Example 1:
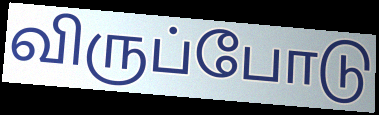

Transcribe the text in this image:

விருப்போடு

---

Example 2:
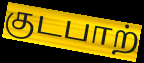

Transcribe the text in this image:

குடபாற்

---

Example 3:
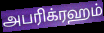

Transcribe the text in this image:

அபரிக்ரஹம்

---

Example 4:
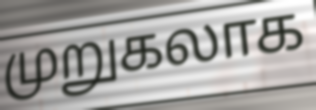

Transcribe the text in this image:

முறுகலாக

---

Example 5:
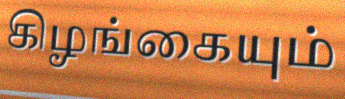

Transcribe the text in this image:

கிழங்கையும்